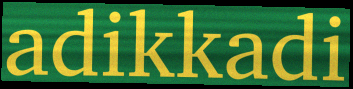
adikkadi